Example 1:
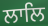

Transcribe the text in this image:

ਲਾਲਿ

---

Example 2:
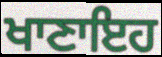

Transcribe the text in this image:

ਖਾਣਾਇਹ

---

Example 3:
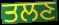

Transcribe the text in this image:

ਤਲਣ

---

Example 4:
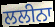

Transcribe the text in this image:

ਲਲੀਨਾ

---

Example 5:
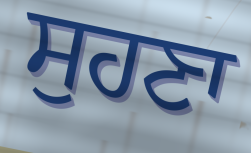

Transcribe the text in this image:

ਸੁਹਣਾ